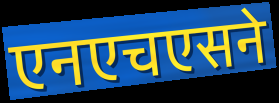
एनएचएसने